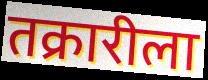
तक्रारीला